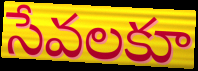
సేవలకూ